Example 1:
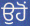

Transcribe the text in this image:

ਉਹੋਂ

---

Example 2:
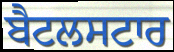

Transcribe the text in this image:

ਬੈਟਲਸਟਾਰ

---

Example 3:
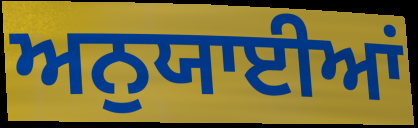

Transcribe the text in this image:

ਅਨੁਯਾਈਆਂ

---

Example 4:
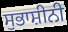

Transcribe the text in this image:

ਸੁਭਾਸ਼ੀਨੀ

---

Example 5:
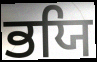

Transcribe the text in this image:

ਭਯਿ